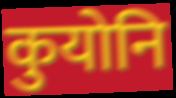
कुयोनि